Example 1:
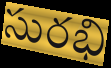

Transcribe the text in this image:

సురభి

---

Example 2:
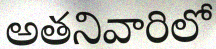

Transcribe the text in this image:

అతనివారిలో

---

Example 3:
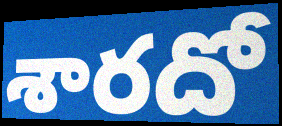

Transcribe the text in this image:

శారదో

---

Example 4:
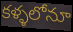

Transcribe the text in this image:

కళ్ళలోనూ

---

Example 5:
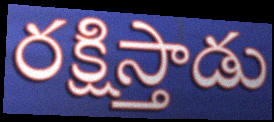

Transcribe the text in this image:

రక్షిస్తాడు